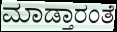
ಮಾಡ್ತಾರಂತೆ